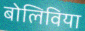
बोलिविया